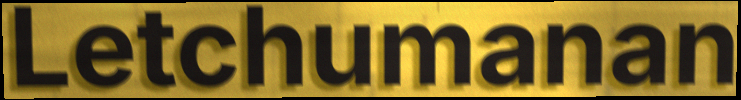
Letchumanan